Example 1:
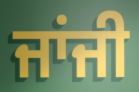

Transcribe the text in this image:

ਜਾਂਜੀ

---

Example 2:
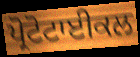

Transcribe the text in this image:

ਪ੍ਰੋਟੋਟਾਈਕਲ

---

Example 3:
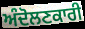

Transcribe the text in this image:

ਅੰਦੋਲਣਕਾਰੀ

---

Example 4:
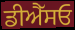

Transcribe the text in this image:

ਡੀਐੱਸਓ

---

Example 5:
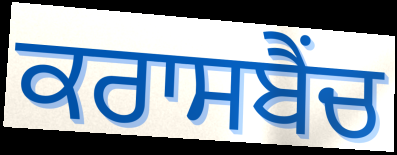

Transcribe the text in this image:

ਕਰਾਸਬੈਂਚ